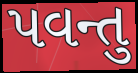
પવન્તુ